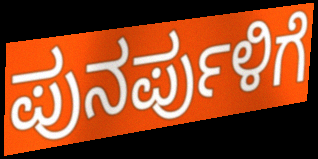
ಪುನರ್ಪುಳಿಗೆ